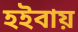
হইবায়